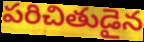
పరిచితుడైన